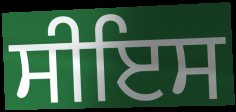
ਸੀਇਸ